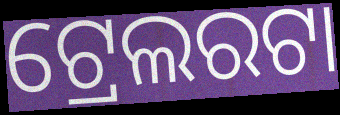
ଟ୍ରେଲରଟା